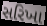
સરિખા